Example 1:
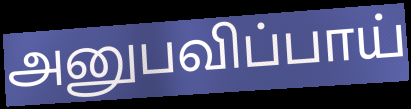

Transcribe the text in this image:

அனுபவிப்பாய்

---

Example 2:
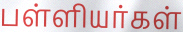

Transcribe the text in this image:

பள்ளியர்கள்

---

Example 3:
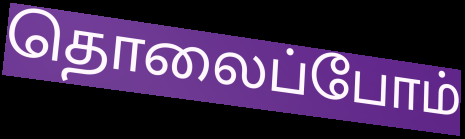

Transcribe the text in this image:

தொலைப்போம்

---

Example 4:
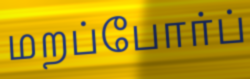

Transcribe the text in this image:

மறப்போர்ப்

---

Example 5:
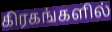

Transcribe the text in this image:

கிரகங்களில்